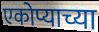
एकोप्याच्या